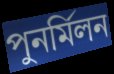
পুনর্মিলন